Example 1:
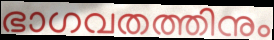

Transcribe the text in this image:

ഭാഗവതത്തിനും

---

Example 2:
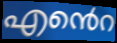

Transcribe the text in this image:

എൻെറ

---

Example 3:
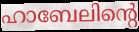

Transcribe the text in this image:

ഹാബേലിന്റെ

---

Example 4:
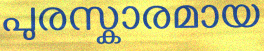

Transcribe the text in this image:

പുരസ്കാരമായ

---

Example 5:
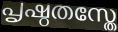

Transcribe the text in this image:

പൃഷ്ഠതസ്തേ